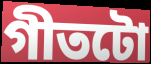
গীতটো